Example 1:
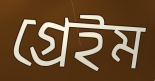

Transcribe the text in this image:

গ্রেইম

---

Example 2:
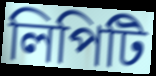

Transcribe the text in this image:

লিপিটি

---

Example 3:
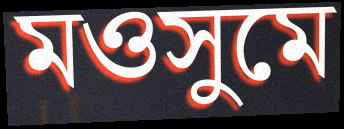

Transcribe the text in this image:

মওসুমে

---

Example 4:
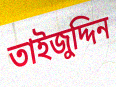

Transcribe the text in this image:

তাইজুদ্দিন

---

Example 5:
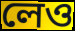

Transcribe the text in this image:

লেও